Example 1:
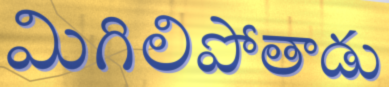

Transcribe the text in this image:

మిగిలిపోతాడు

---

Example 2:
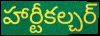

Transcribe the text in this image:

హార్టీకల్చర్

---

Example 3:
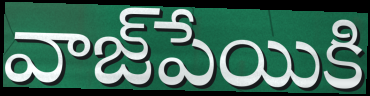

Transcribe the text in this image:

వాజ్‌పేయికి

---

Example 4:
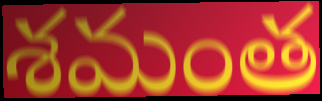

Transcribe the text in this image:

శమంత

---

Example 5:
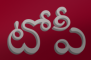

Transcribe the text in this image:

టోపీ